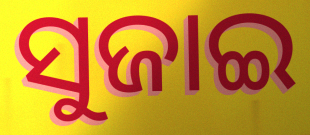
ସୁଜାଇ